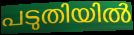
പടുതിയിൽ